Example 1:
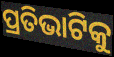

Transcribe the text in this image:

ପ୍ରତିଭାଟିକୁ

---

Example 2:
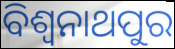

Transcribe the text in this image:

ବିଶ୍ଵନାଥପୁର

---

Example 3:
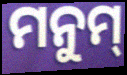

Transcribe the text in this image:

ମନୁମ୍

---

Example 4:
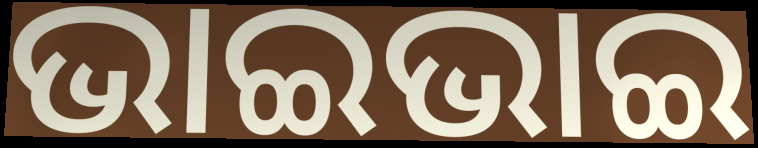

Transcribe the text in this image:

ଭାଇଭାଇ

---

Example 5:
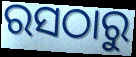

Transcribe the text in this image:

ରସଠାରୁ